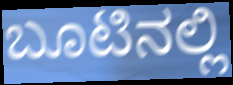
ಬೂಟಿನಲ್ಲಿ